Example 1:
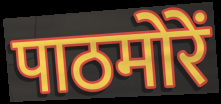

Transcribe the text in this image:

पाठमोरें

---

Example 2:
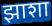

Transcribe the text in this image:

झाशा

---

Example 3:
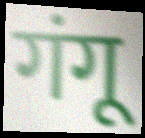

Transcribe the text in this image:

गंगू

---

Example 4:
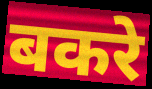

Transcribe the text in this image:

बकरे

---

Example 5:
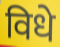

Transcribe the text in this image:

विधे